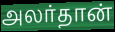
அலர்தான்